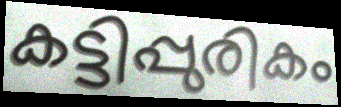
കട്ടിപ്പുരികം